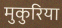
मुकुरिया